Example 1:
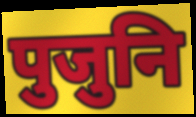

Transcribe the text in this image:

पुजुनि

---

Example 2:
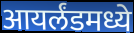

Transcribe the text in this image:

आयर्लंडमध्ये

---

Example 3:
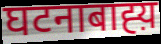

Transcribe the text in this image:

घटनाबाह्य़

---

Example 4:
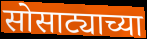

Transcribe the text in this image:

सोसाट्याच्या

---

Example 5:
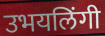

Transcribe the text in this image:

उभयलिंगी